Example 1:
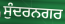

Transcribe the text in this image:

ਸੁੰਦਰਨਗਰ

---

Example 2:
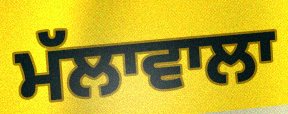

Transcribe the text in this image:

ਮੱਲਾਵਾਲਾ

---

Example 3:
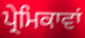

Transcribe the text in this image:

ਪ੍ਰੇਮਿਕਾਵਾਂ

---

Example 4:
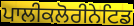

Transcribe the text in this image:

ਪਾਲੀਕਲੋਰੀਨੇਟਿਡ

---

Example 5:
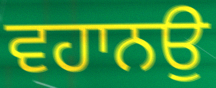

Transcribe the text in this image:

ਵਹਾਨਉ